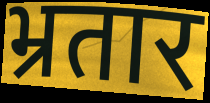
भ्रतार